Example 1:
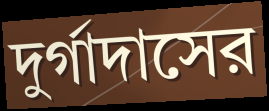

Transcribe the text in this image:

দুর্গাদাসের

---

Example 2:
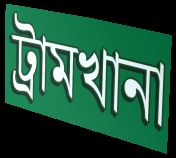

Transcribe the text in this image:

ট্রামখানা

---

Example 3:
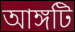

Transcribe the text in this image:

আঙ্গটি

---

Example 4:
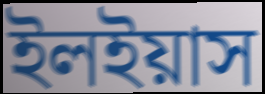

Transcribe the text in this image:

ইলইয়াস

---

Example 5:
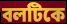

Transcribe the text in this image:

বলটিকে